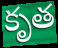
కృత